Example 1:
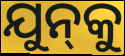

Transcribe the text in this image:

ଯୁନ୍‍କୁ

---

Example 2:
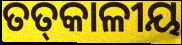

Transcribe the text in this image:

ତତ୍‌କାଳୀୟ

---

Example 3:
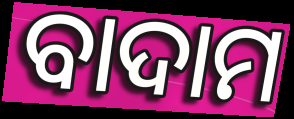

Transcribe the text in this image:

ବାଦାମ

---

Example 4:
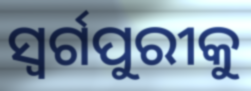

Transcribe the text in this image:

ସ୍ୱର୍ଗପୁରୀକୁ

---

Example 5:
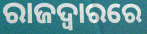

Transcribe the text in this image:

ରାଜଦ୍ୱାରରେ